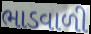
ભાડવાળી